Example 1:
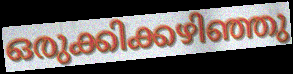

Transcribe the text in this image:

ഒരുക്കിക്കഴിഞ്ഞു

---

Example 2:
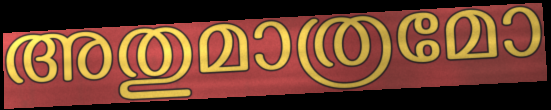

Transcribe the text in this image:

അതുമാത്രമോ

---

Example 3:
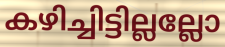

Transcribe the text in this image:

കഴിച്ചിട്ടില്ലല്ലോ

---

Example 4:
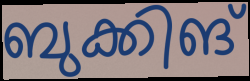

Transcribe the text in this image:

ബുക്കിങ്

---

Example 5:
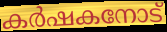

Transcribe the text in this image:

കർഷകനോട്